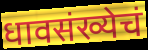
धावसंख्येचं